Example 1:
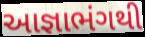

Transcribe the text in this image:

આજ્ઞાભંગથી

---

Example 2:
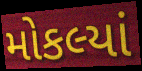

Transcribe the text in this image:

મોકલ્યાં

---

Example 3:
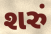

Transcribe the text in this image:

શરું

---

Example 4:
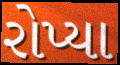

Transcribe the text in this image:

રોપ્યા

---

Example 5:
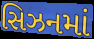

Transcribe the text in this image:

સિઝનમાં